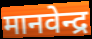
मानवेन्द्र